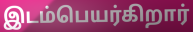
இடம்பெயர்கிறார்